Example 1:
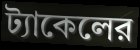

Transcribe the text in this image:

ট্যাকেলের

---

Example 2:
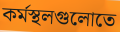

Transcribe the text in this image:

কর্মস্থলগুলোতে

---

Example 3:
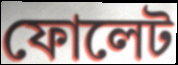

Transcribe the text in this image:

ফোলেট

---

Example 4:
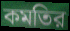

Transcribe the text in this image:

কমতির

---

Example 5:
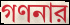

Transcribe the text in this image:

গণনার